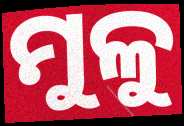
ମୁଳୁ